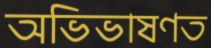
অভিভাষণত